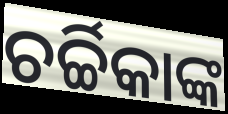
ଚର୍ଚ୍ଚିକାଙ୍କ